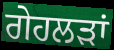
ਗੇਹਲੜਾਂ